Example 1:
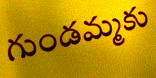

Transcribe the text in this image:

గుండమ్మకు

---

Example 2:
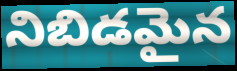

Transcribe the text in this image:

నిబిడమైన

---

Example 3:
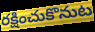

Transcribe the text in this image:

రక్షించుకొనుట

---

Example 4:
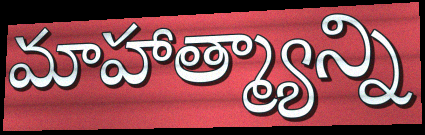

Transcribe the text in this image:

మాహాత్మ్యాన్ని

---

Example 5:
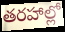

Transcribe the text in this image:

తరహాల్లో